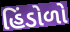
હિંડોળો